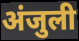
अंजुली